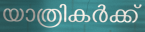
യാത്രികർക്ക്